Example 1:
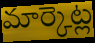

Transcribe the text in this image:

మార్కెట్ల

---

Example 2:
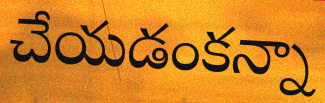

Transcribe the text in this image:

చేయడంకన్నా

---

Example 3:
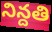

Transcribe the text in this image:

నిన్దతి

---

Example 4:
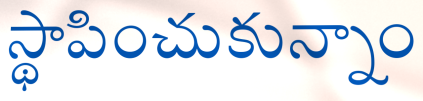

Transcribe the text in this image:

స్థాపించుకున్నాం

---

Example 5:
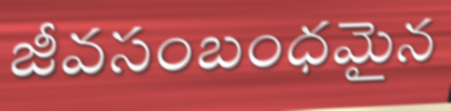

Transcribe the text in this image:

జీవసంబంధమైన